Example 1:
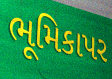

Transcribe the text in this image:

ભૂમિકાપર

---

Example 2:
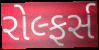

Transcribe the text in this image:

રોલ્ફર્સ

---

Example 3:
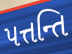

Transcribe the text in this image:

પત્તન્તિ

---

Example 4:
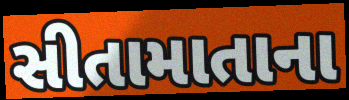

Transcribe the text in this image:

સીતામાતાના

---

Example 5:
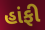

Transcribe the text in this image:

હાંફી